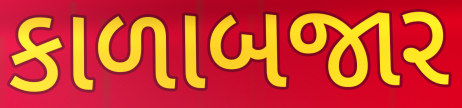
કાળાબજાર